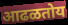
आढळतोय